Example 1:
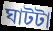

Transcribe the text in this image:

ঘাটটা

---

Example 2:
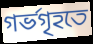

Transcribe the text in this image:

গর্ভগৃহতে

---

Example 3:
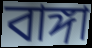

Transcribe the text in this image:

বাঙ্গা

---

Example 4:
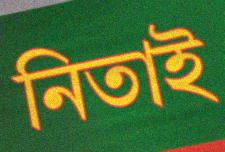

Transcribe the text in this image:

নিতাই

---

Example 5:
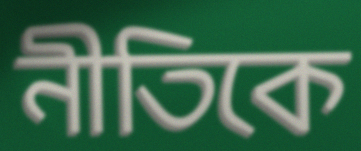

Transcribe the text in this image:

নীতিকে